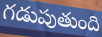
గడుపుతుంది